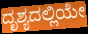
ದೃಶ್ಯದಲ್ಲಿಯೇ